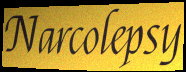
Narcolepsy